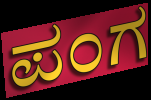
ಪಂಗ